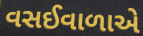
વસઈવાળાએ